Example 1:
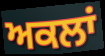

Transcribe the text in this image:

ਅਕਲਾਂ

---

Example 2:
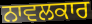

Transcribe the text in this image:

ਨਾਵਲਕਾਰ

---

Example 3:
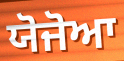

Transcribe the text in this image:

ਯੋਜੋਆ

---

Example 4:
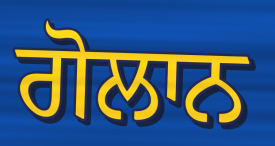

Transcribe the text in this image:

ਗੋਲਾਨ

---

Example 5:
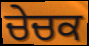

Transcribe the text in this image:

ਚੇਚਕ